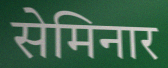
सेमिनार